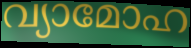
വ്യാമോഹ